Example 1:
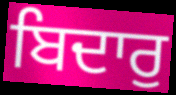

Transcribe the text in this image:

ਬਿਦਾਰੁ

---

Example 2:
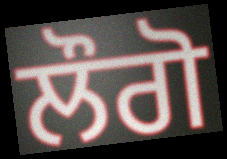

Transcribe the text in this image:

ਲੌਗੋ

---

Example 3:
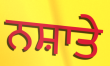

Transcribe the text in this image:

ਨਸ਼ਾਤੇ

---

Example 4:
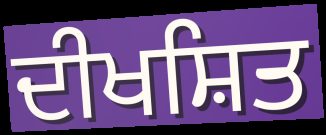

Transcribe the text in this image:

ਦੀਖਸ਼ਿਤ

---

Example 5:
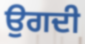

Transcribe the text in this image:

ਉਗਦੀ